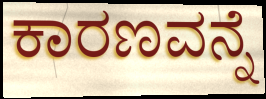
ಕಾರಣವನ್ನೆ